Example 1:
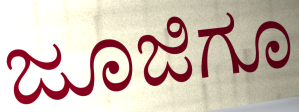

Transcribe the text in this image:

ಜೂಜಿಗೂ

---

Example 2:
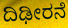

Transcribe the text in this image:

ದಿಢೀರನೆ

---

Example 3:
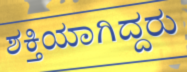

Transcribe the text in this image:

ಶಕ್ತಿಯಾಗಿದ್ದರು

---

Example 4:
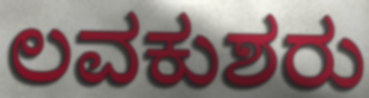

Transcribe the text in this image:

ಲವಕುಶರು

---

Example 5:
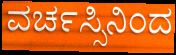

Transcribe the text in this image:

ವರ್ಚಸ್ಸಿನಿಂದ